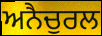
ਅਨੈਚੁਰਲ